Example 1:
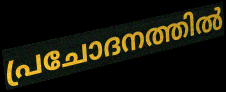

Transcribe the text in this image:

പ്രചോദനത്തിൽ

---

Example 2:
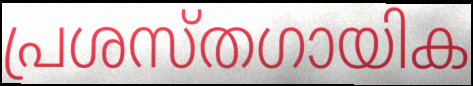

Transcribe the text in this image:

പ്രശസ്തഗായിക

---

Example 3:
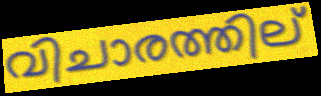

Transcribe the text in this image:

വിചാരത്തില്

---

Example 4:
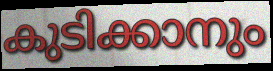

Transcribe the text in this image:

കുടിക്കാനും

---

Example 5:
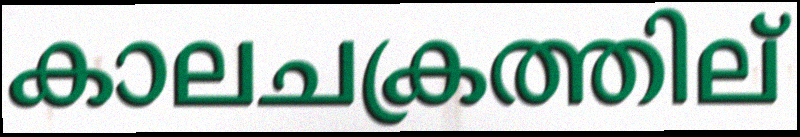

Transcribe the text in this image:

കാലചക്രത്തില്